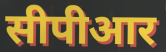
सीपीआर